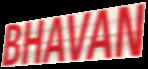
BHAVAN